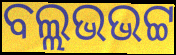
ବଲ୍ଲଭଭଟ୍ଟ